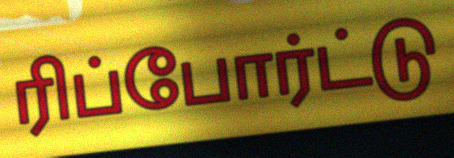
ரிப்போர்ட்டு